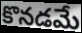
కొనడమే